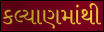
કલ્યાણમાંથી